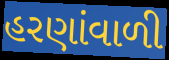
હરણાંવાળી